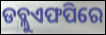
ଡବ୍ଲୁଏଫପିରେ